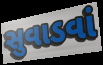
સુવાડવાં